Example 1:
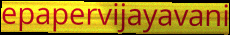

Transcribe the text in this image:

epapervijayavani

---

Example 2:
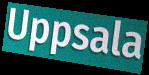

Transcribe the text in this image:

Uppsala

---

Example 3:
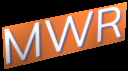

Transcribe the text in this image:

MWR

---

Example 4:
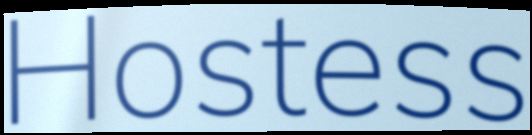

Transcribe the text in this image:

Hostess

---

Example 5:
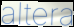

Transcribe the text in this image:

altera